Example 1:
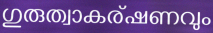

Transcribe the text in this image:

ഗുരുത്വാകര്ഷണവും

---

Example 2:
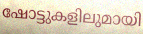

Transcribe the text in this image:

ഷോട്ടുകളിലുമായി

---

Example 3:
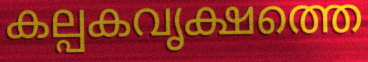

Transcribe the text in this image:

കല്പകവൃക്ഷത്തെ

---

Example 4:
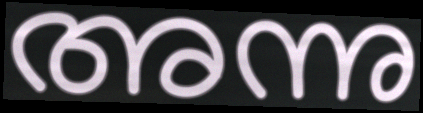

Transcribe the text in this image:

അന്നു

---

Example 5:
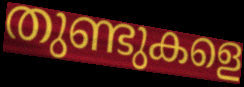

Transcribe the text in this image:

തുണ്ടുകളെ